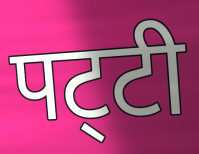
पट्‌टी